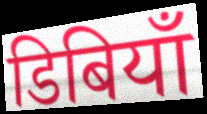
डिबियाँ